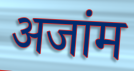
अजांम